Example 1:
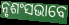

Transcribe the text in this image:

ନୃଶଂସଭାବେ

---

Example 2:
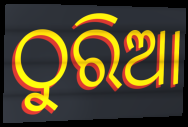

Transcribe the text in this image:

ଠୁରିଆ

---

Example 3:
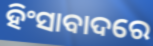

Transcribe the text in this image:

ହିଂସାବାଦରେ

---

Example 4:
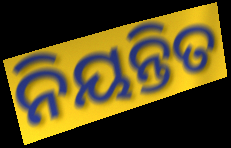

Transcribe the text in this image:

ନିୟନ୍ତିତ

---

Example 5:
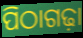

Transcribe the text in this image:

ପିଠାଗଢ଼ା